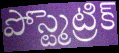
పోస్ట్మెట్రిక్